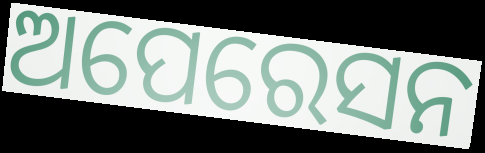
ଅପେରେସନ